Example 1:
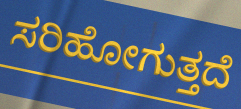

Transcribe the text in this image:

ಸರಿಹೋಗುತ್ತದೆ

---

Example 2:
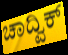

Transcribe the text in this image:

ಚಾದ್ವಿಕ್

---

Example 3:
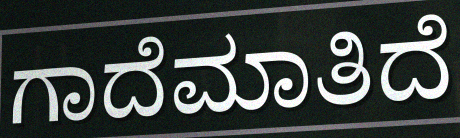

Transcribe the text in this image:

ಗಾದೆಮಾತಿದೆ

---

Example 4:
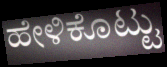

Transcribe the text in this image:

ಹೇಳಿಕೊಟ್ಟು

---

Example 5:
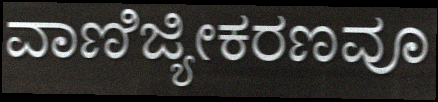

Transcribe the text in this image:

ವಾಣಿಜ್ಯೀಕರಣವೂ